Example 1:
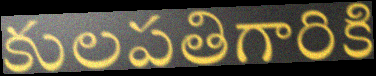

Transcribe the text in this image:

కులపతిగారికి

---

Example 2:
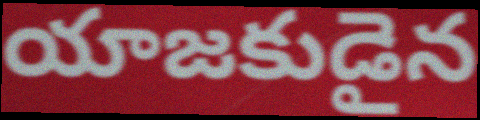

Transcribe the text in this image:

యాజకుడైన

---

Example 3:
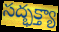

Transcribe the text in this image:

సద్భక్త్యా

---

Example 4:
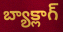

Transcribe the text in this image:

బ్యాక్లాగ్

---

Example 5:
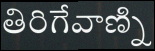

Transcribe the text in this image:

తిరిగేవాణ్ని